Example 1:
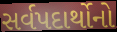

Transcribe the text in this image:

સર્વપદાર્થોનો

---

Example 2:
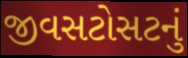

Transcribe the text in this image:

જીવસટોસટનું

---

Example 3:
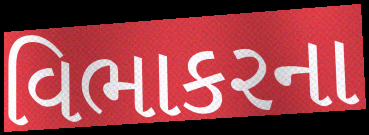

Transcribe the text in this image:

વિભાકરના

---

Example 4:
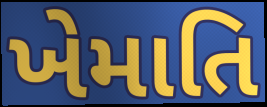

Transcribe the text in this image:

ખેમાતિ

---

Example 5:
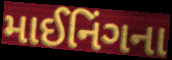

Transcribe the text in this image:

માઈનિંગના